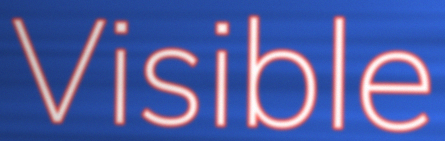
Visible